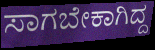
ಸಾಗಬೇಕಾಗಿದ್ದ